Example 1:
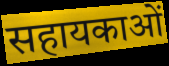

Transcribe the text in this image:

सहायकाओं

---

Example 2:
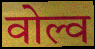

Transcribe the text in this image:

वोल्व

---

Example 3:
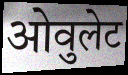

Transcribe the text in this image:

ओवुलेट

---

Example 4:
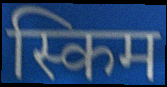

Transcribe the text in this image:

स्किम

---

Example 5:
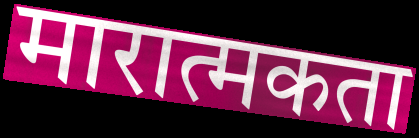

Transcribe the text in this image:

मारात्मकता